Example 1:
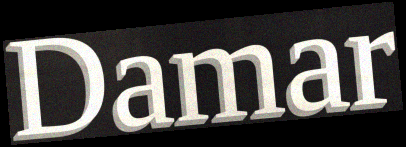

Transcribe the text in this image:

Damar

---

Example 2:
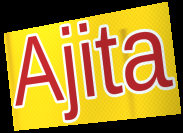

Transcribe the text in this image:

Ajita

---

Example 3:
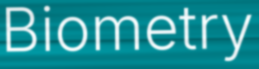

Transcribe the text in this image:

Biometry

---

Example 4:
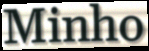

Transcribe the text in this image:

Minho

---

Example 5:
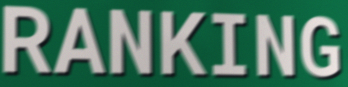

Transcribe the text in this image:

RANKING